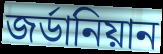
জর্ডানিয়ান